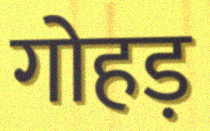
गोहड़